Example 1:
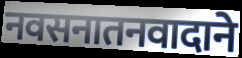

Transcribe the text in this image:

नवसनातनवादाने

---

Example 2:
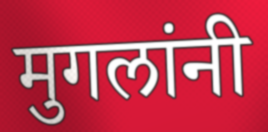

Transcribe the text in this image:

मुगलांनी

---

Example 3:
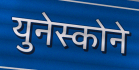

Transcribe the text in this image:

युनेस्कोने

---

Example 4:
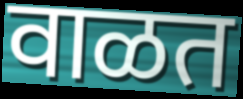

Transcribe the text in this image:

वाळत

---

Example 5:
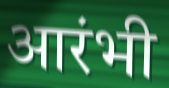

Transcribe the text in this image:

आरंभी